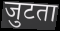
जुटता